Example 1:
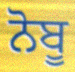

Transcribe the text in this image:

ਨੋਬੂ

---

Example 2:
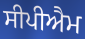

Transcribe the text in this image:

ਸੀਪੀਐਮ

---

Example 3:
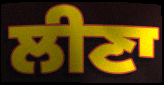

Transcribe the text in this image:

ਲੀਣਾ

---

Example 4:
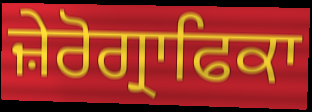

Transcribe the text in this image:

ਜ਼ੇਰੋਗ੍ਰਾਫਿਕਾ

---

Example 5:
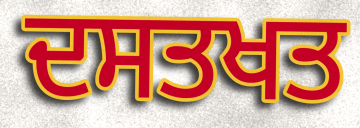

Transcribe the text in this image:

ਦਸਤਖਤ